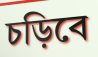
চড়িবে